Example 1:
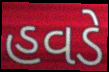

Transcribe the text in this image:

હવડે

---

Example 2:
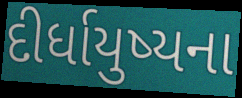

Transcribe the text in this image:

દીર્ધાયુષ્યના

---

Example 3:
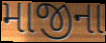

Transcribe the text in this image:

માજીના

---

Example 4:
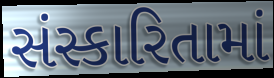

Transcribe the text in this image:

સંસ્કારિતામાં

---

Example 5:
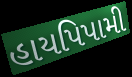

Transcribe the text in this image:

હાયપિપામી